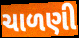
ચાળણી